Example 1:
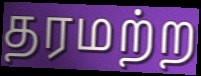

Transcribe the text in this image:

தரமற்ற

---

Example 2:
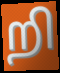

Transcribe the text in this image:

றி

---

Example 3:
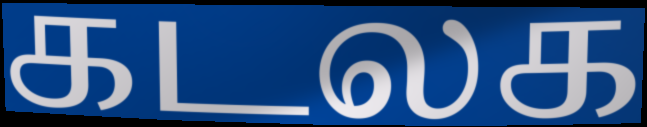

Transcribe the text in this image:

கடலக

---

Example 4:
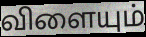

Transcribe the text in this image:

விளையும்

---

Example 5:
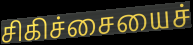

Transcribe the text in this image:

சிகிச்சையைச்